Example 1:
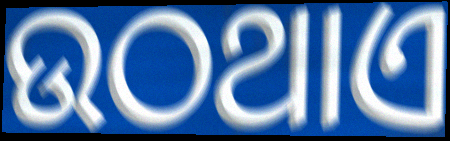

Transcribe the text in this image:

ଉଠଥାଏ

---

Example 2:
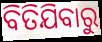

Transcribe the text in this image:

ବିତିଯିବାରୁ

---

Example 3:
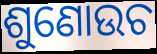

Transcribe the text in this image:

ଶୁଣୋଉଚ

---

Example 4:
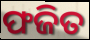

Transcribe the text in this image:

ଫଜିତ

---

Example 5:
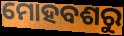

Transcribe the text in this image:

ମୋହବଶରୁ